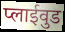
प्लाईवुड